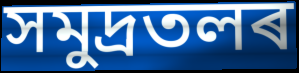
সমুদ্ৰতলৰ